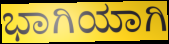
ಭಾಗಿಯಾಗಿ